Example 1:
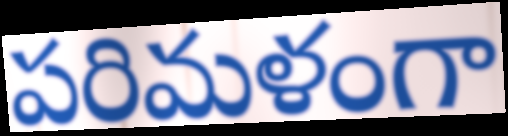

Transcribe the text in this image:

పరిమళంగా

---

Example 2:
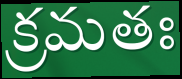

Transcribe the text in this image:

క్రమతః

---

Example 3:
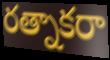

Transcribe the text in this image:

రత్నాకరా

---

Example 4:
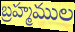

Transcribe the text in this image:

బ్రహ్మముల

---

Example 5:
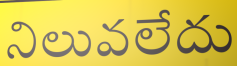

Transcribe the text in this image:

నిలువలేదు